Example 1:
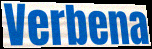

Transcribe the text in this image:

Verbena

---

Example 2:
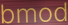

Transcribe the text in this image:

bmod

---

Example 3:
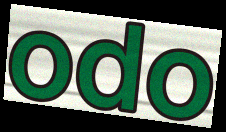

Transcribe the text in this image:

odo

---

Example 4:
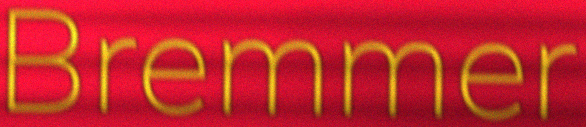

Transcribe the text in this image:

Bremmer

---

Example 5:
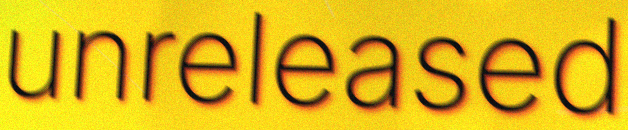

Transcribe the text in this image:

unreleased